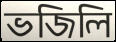
ভজিলি